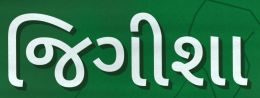
જિગીશા